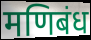
मणिबंध